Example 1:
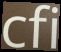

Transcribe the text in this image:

cfi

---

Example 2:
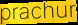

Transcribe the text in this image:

prachur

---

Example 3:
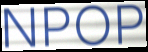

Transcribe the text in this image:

NPOP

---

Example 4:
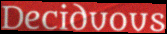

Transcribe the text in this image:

Deciduous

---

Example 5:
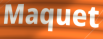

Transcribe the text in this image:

Maquet